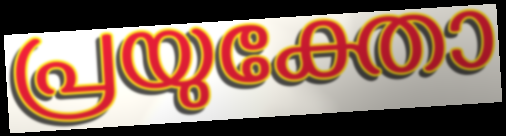
പ്രയുക്തോ